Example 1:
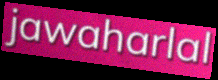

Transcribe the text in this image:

jawaharlal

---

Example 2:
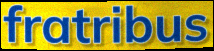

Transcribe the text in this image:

fratribus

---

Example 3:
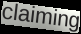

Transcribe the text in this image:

claiming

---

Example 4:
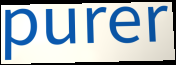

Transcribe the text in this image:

purer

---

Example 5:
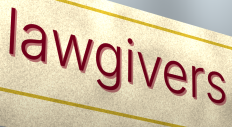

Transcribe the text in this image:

lawgivers